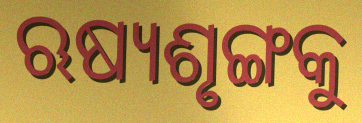
ଋଷ୍ୟଶୃଙ୍ଗକୁ